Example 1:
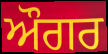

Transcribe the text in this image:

ਔਗਰ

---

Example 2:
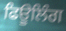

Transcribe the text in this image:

ਫਿਊਲਿੰਗ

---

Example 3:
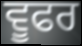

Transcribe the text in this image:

ਵੂਫਰ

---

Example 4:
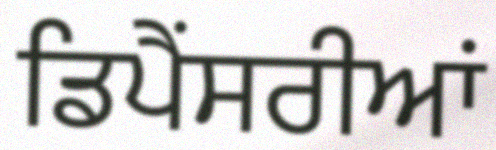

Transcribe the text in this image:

ਡਿਪੈਂਸਰੀਆਂ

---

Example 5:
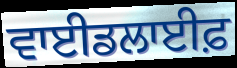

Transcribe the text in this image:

ਵਾਈਡਲਾਈਫ਼